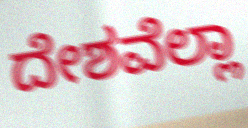
ದೇಶವೆಲ್ಲಾ